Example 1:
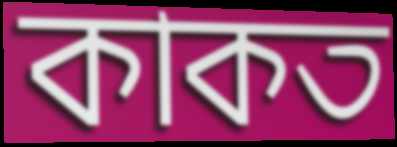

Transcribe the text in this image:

কাকত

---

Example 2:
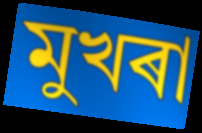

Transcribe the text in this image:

মুখৰা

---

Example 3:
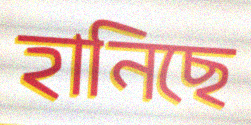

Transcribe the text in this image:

হানিছে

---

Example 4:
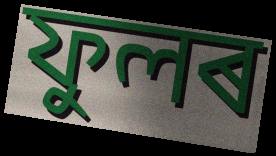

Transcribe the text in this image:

ফুলৰ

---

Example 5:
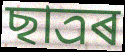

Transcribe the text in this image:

ছাত্ৰৰ